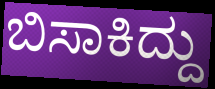
ಬಿಸಾಕಿದ್ದು